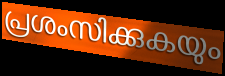
പ്രശംസിക്കുകയും